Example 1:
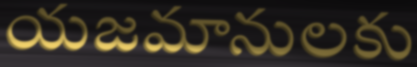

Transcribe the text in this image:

యజమానులకు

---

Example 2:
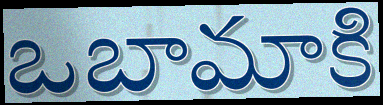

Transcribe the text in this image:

ఒబామాకి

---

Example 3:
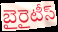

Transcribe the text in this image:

బైరైటీస్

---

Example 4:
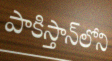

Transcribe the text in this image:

పాకిస్తాన్‌లోని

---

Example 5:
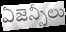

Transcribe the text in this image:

ఏజెన్సీలు